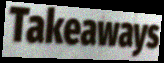
Takeaways